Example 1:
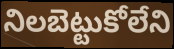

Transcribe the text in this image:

నిలబెట్టుకోలేని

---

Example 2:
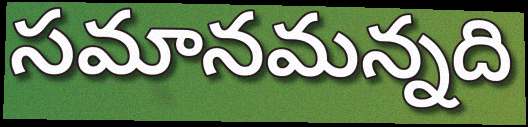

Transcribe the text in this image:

సమానమన్నది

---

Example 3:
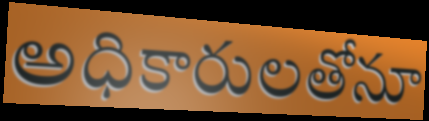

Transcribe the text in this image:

అధికారులతోనూ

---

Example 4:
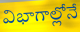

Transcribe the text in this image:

విభాగాల్లోనే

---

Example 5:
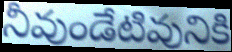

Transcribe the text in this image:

నీవుండేటివునికి